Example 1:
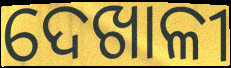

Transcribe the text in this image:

ଦେଖାଳୀ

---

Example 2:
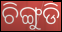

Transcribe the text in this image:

ଚିଙ୍ଗୁଡି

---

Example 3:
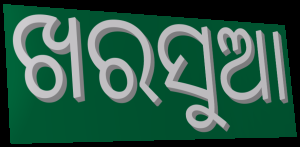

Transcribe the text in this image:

ଖରସୁଆ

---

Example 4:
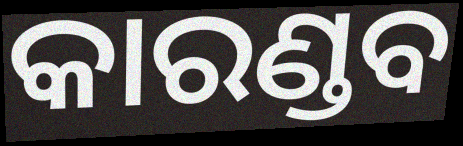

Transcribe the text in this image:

କାରଣ୍ଡବ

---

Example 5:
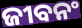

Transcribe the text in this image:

ଜୀବନଂ